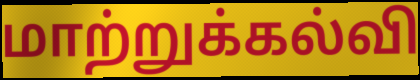
மாற்றுக்கல்வி